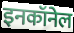
इनकॉनेल